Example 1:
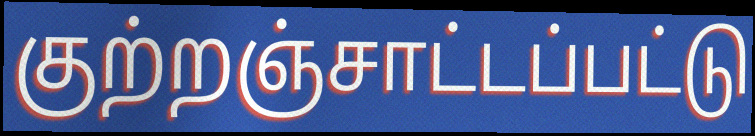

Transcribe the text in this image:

குற்றஞ்சாட்டப்பட்டு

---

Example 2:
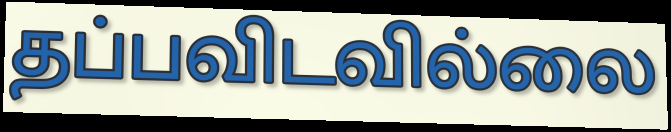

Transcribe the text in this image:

தப்பவிடவில்லை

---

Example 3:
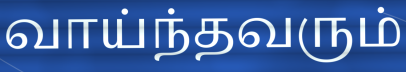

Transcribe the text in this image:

வாய்ந்தவரும்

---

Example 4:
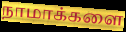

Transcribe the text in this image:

நாமாக்களை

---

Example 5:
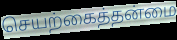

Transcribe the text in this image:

செயற்கைத்தன்மை